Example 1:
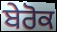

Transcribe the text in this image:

ਬੇਰੋਕ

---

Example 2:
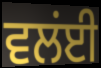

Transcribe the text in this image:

ਵਲਂਈ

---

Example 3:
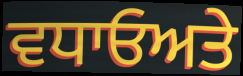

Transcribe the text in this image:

ਵਧਾਓਅਤੇ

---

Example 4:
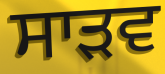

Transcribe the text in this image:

ਸਾੜਵ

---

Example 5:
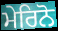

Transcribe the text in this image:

ਮੇਰਿਨੋ